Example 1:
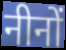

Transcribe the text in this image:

नीनों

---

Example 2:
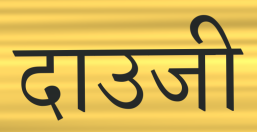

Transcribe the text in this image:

दाउजी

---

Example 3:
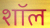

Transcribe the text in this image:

शॉल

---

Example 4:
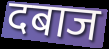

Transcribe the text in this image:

दबाज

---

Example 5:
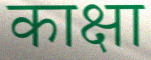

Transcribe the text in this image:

काक्षा